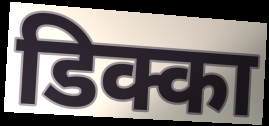
डिक्का